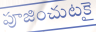
పూజించుటకై